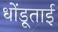
धोंडूताई